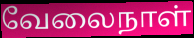
வேலைநாள்